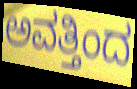
ಅವತ್ತಿಂದ